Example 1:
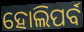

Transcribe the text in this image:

ହୋଲିପର୍ବ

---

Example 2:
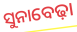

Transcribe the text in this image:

ସୁନାବେଢ଼ା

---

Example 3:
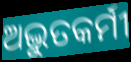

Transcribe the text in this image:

ଅଦ୍ଭୁତକର୍ମୀ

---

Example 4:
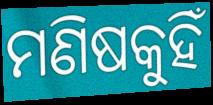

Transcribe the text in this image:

ମଣିଷକୁହିଁ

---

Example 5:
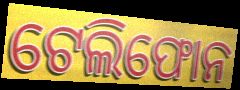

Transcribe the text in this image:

ଟେଲିଫୋନ